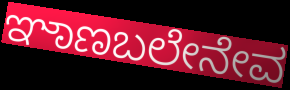
ಞಾಣಬಲೇನೇವ